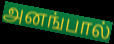
அனங்பால்